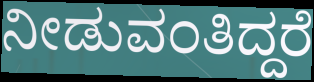
ನೀಡುವಂತಿದ್ದರೆ